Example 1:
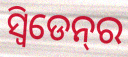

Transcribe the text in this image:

ସ୍ୱିଡେନ୍‌ର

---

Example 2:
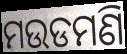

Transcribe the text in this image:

ମଉଡମଣି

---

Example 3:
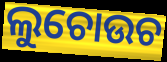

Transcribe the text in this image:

ଲୁଚୋଉଚ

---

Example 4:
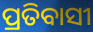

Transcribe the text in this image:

ପ୍ରତିବାସୀ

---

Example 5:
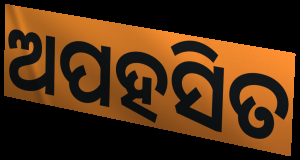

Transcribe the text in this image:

ଅପହସିତ